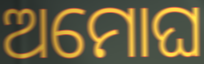
ଅମୋଘ